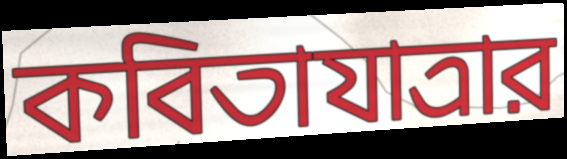
কবিতাযাত্রার